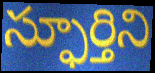
స్ఫూర్తిని